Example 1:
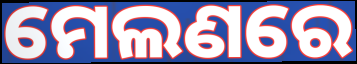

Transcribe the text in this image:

ମେଲଣରେ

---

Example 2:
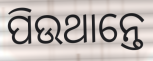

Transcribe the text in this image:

ପିଉଥାନ୍ତେ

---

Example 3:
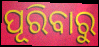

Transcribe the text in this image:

ପୂରିବାରୁ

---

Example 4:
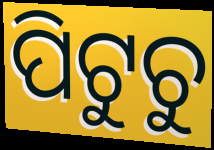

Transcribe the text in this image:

ପିଟୁଚୁ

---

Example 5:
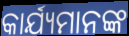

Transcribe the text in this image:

କାର୍ଯ୍ୟମାନଙ୍କ